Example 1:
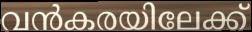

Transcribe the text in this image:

വൻകരയിലേക്ക്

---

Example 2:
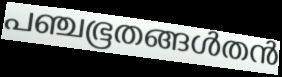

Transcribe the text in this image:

പഞ്ചഭൂതങ്ങൾതൻ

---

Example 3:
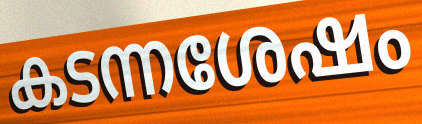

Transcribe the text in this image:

കടന്നശേഷം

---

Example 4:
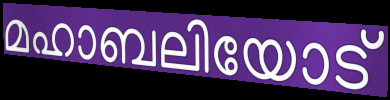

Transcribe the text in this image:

മഹാബലിയോട്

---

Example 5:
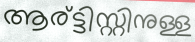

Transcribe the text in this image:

ആര്ട്ടിസ്റ്റിനുള്ള